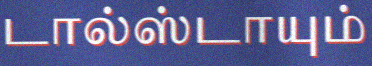
டால்ஸ்டாயும்